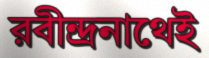
রবীন্দ্রনাথেই